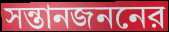
সন্তানজননের